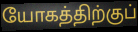
யோகத்திற்குப்